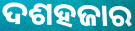
ଦଶହଜାର